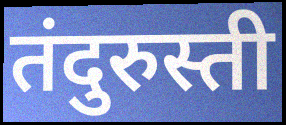
तंदुरुस्ती